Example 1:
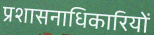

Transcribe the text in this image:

प्रशासनाधिकारियों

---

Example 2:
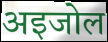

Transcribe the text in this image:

अइजोल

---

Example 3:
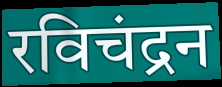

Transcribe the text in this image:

रविचंद्रन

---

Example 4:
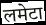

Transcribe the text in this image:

लमेटा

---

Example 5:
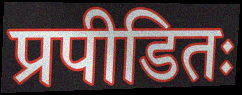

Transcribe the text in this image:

प्रपीडितः